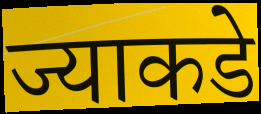
ज्याकडे